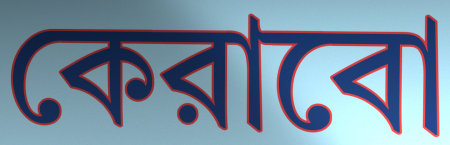
কেরাবো